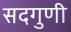
सदगुणी